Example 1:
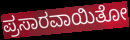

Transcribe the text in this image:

ಪ್ರಸಾರವಾಯಿತೋ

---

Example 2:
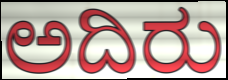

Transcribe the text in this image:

ಅದಿರು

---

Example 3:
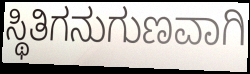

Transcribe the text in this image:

ಸ್ಥಿತಿಗನುಗುಣವಾಗಿ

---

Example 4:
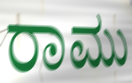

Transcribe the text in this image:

ರಾಮು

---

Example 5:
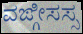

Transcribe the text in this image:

ವಙ್ಗೀಸಸ್ಸ